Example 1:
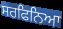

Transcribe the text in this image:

ਸਰਫਿਨਿਆ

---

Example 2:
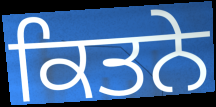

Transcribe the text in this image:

ਕਿਤਨੇ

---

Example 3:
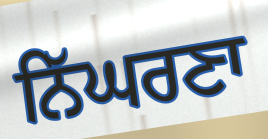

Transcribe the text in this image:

ਨਿੱਘਰਣਾ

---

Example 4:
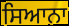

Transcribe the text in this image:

ਸਿਆਨਾ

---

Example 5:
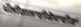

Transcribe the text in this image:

ਪੌਲੀਗਲਾਈਕੋਸਾਈਡਾਂ